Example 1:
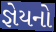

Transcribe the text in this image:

જ્ઞેયનો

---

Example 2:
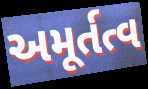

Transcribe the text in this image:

અમૂર્તત્વ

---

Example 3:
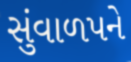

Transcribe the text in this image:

સુંવાળપને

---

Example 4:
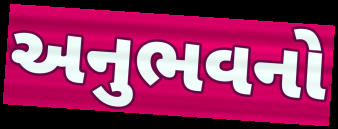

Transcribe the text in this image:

અનુભવનો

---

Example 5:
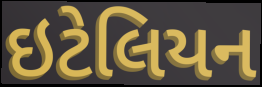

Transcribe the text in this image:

ઇટેલિયન